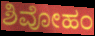
ಶಿವೋಹಂ